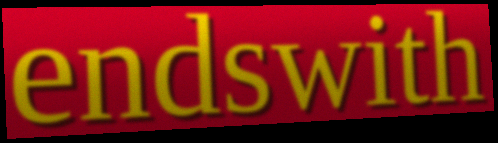
endswith